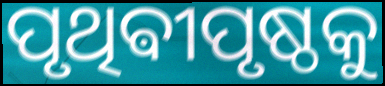
ପୃଥିଵୀପୃଷ୍ଠକୁ